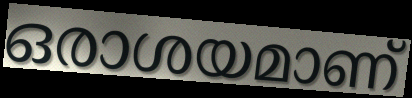
ഒരാശയമാണ്